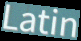
Latin